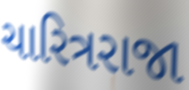
ચારિત્રરાજા